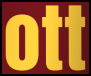
ott